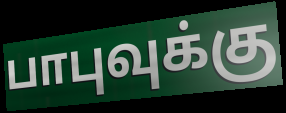
பாபுவுக்கு